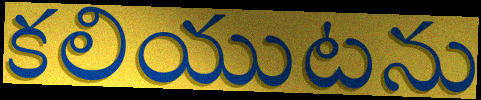
కలియుటను